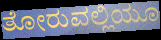
ತೋರುವಲ್ಲಿಯೂ